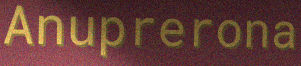
Anuprerona